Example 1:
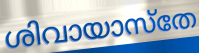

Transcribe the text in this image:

ശിവായാസ്തേ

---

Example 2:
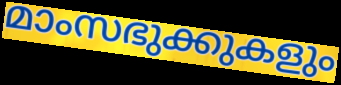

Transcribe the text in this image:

മാംസഭുക്കുകളും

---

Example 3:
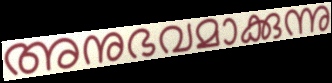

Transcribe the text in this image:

അനുഭവമാക്കുന്നു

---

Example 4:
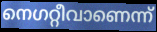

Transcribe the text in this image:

നെഗറ്റീവാണെന്ന്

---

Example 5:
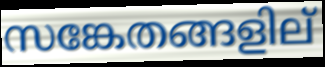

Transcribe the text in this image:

സങ്കേതങ്ങളില്